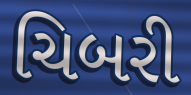
ચિબરી